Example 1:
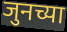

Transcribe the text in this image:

जुनच्या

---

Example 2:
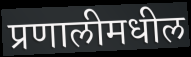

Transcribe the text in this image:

प्रणालीमधील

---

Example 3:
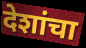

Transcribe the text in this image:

देशांचा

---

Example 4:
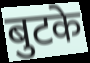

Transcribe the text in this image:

बुटके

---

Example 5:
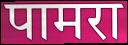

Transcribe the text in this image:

पामरा